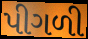
પીગળી